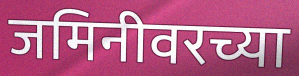
जमिनीवरच्या